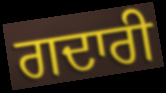
ਗਦਾਰੀ